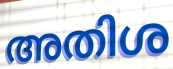
അതിശ